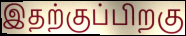
இதற்குப்பிறகு